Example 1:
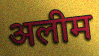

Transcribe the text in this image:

अलीम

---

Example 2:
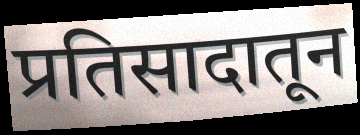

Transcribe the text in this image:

प्रतिसादातून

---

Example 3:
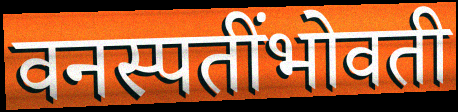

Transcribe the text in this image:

वनस्पतींभोवती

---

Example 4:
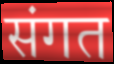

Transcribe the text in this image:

संगत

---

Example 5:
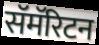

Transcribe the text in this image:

सॅमॅरिटन